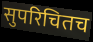
सुपरिचितच